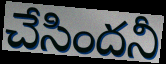
చేసిందనీ